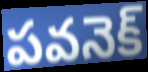
పవనెక్